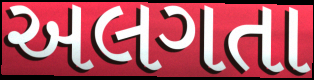
અલગતા